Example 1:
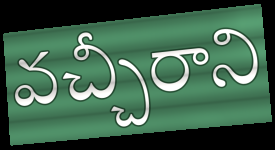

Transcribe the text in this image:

వచ్చీరాని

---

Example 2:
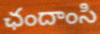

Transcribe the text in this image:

ఛందాంసి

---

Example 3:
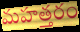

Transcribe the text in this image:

మహత్తరం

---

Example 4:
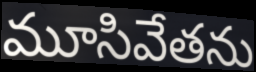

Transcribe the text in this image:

మూసివేతను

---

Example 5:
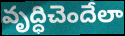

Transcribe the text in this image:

వృద్ధిచెందేలా